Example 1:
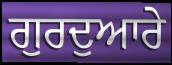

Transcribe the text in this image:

ਗੁਰਦੁਆਰੇ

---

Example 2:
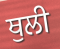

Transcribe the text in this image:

ਥੁਲੀ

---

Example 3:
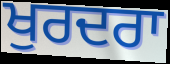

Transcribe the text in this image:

ਖੁਰਦਰਾ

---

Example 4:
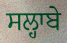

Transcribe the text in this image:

ਸਲ੍ਹਾਬੇ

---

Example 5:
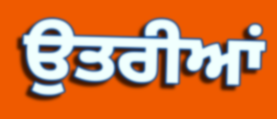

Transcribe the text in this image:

ਉਤਰੀਆਂ